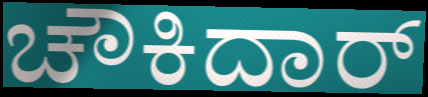
ಚೌಕಿದಾರ್